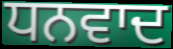
ਧਨਵਾਦ